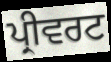
ਪ੍ਰੀਵਰਟ